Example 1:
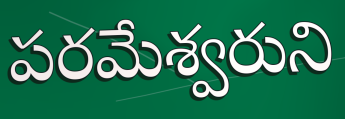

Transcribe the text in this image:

పరమేశ్వరుని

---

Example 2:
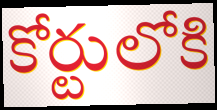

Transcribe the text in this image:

కోర్టులోకి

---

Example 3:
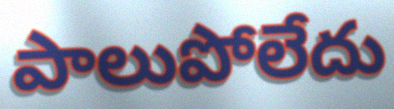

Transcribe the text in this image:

పాలుపోలేదు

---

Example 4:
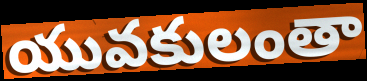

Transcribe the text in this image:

యువకులంతా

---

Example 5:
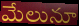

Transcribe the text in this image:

మేలునూ